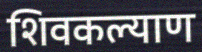
शिवकल्याण